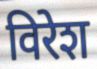
विरेश